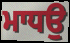
ਮਾਧਉ